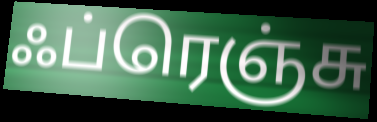
ஃப்ரெஞ்சு